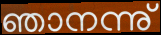
ഞാനന്നു്